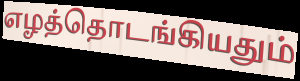
எழத்தொடங்கியதும்